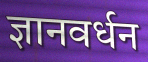
ज्ञानवर्धन